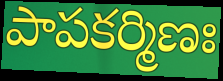
పాపకర్మిణః